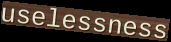
uselessness